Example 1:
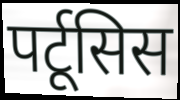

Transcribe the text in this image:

पर्टूसिस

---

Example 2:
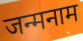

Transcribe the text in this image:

जन्मनाम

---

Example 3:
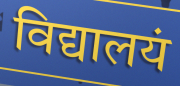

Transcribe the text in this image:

विद्यालयं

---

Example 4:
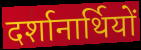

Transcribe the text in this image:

दर्शानार्थियों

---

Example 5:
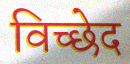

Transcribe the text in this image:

विच्छेद